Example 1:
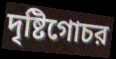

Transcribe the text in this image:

দৃষ্টিগোচর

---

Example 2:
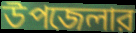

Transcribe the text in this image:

উপজেলার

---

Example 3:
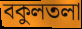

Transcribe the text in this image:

বকুলতলা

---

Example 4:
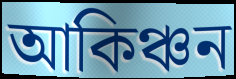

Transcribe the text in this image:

আকিঞ্চন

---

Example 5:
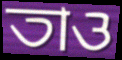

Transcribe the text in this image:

তাও